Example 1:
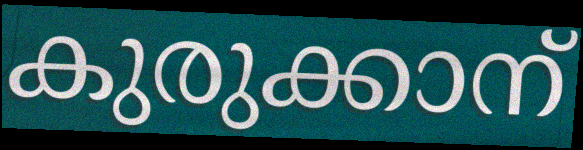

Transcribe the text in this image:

കുരുക്കാന്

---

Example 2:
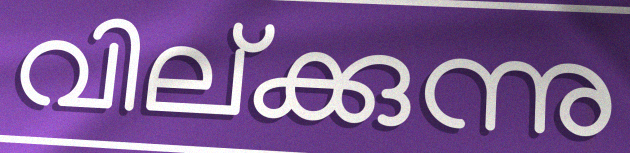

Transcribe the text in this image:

വില്ക്കുന്നു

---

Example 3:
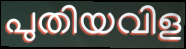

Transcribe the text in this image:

പുതിയവിള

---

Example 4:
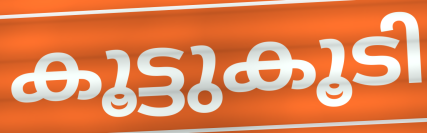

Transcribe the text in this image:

കൂട്ടുകൂടി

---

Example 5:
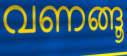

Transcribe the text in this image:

വണങ്ങൂ